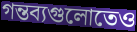
গন্তব্যগুলোতেও